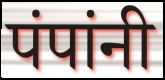
पंपांनी